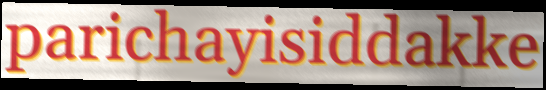
parichayisiddakke